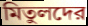
মিতুলদের